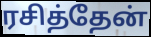
ரசித்தேன்